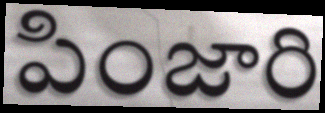
పింజారి